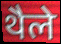
थैले